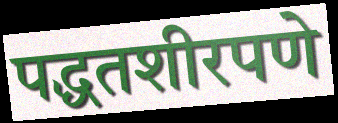
पद्धतशीरपणे